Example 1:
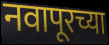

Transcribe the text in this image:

नवापूरच्या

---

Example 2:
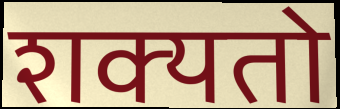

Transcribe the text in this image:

शक्‍यतो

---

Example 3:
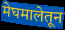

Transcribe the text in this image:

मेघमालेतून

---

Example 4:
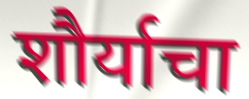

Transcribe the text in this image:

शौर्याचा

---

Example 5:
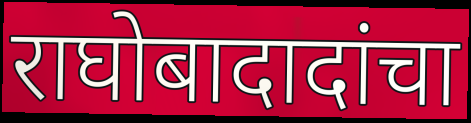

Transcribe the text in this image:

राघोबादादांचा